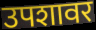
उपशावर